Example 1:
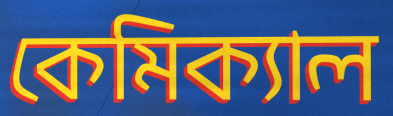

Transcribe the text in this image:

কেমিক্যাল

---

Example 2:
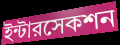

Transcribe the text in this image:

ইন্টারসেকশন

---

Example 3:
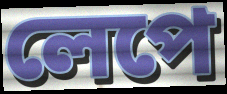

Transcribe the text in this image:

লেপে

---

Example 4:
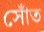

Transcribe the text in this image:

সোঁত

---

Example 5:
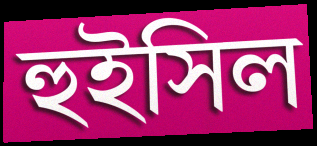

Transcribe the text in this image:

হুইসিল